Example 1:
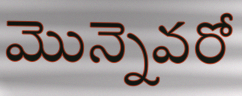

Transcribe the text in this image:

మొన్నెవరో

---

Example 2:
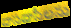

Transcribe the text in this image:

దాసదాసీలను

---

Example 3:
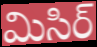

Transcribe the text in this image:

మిసిర్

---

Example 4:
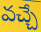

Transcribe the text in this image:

వచ్చే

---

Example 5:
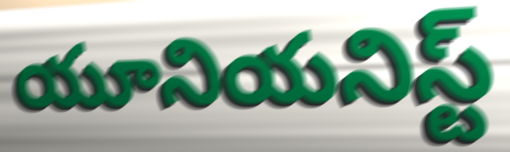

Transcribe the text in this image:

యూనియనిస్ట్